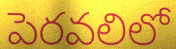
పెరవలిలో